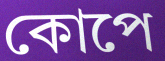
কোপে